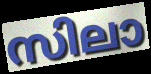
സിലാ